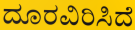
ದೂರವಿರಿಸಿದೆ